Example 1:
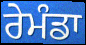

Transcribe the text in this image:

ਰੇਮੰਡਾ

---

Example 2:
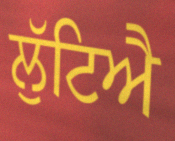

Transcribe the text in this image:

ਲੁੱਟਿਐ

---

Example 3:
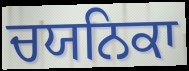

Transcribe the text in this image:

ਚਯਨਿਕਾ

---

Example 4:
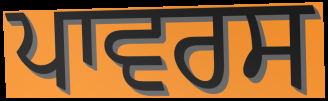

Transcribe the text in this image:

ਪਾਵਰਸ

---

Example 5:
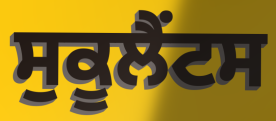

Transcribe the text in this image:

ਸੁਕੂਲੈਂਟਸ